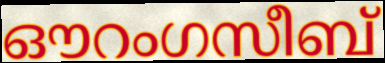
ഔറംഗസീബ്